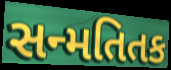
સન્મતિતક